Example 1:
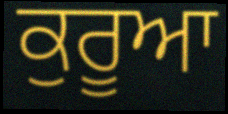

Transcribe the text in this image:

ਕੁਰੂਆ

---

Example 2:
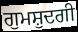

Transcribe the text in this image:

ਗੁਮਸ਼ੁਦਗੀ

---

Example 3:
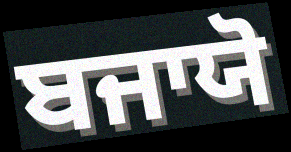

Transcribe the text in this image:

ਬਜਾਯੋ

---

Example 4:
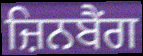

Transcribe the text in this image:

ਜ਼ਿਨਬੈਂਗ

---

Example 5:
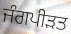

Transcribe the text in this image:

ਜੰਗਪੀੜਤ